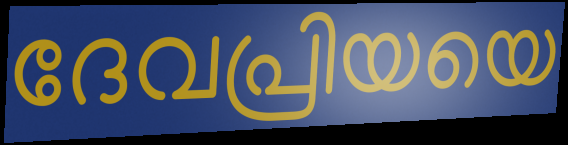
ദേവപ്രിയയെ